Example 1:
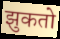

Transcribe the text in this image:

झुकतो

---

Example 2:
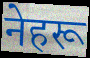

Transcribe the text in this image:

नेहरू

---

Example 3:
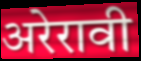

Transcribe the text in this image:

अरेरावी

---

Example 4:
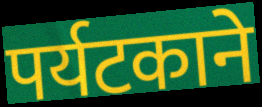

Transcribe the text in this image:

पर्यटकाने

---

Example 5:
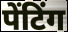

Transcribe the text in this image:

पेंटिंग